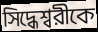
সিদ্ধেশ্বরীকে